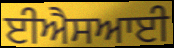
ਈਐਸਆਈ